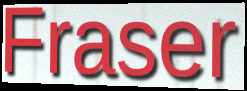
Fraser